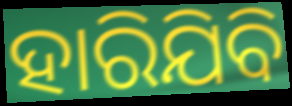
ହାରିଯିବି